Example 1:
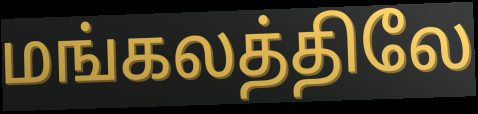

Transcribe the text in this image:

மங்கலத்திலே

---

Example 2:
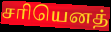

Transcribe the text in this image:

சரியெனத்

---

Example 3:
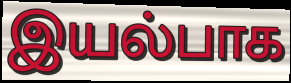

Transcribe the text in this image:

இயல்பாக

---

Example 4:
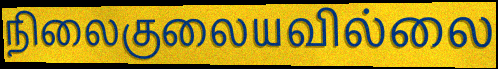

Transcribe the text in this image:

நிலைகுலையவில்லை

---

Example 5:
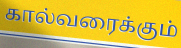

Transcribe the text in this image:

கால்வரைக்கும்